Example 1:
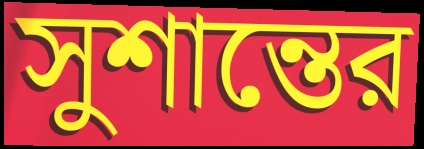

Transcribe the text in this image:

সুশান্তের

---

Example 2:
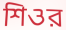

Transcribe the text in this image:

শিওর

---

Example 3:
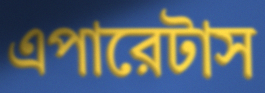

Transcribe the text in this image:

এপারেটাস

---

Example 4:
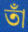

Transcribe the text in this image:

তাঁ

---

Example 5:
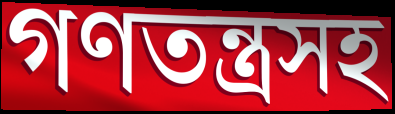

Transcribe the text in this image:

গণতন্ত্রসহ